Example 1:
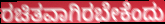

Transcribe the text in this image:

ರಚಿತವಾಗಿರಬೇಕೆಂದು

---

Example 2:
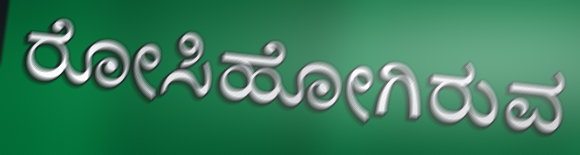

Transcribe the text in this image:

ರೋಸಿಹೋಗಿರುವ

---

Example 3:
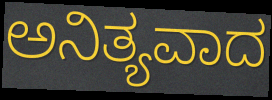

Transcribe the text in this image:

ಅನಿತ್ಯವಾದ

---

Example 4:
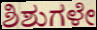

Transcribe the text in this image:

ಶಿಶುಗಳೇ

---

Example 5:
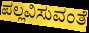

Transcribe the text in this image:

ಪಲ್ಲವಿಸುವಂತೆ